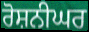
ਰੋਸ਼ਨੀਘਰ